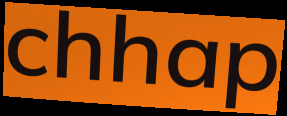
chhap